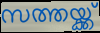
സത്തയ്ക്ക്